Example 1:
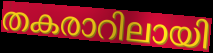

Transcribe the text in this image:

തകരാറിലായി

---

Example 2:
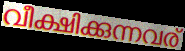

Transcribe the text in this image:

വീക്ഷിക്കുന്നവര്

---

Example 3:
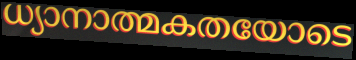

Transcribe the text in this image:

ധ്യാനാത്മകതയോടെ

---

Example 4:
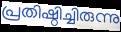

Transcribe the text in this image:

പ്രതിഷ്ഠിച്ചിരുന്നു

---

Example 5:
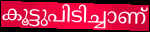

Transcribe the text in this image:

കൂട്ടുപിടിച്ചാണ്